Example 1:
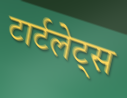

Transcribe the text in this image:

टार्टलेट्स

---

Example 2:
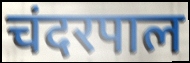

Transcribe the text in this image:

चंदरपाल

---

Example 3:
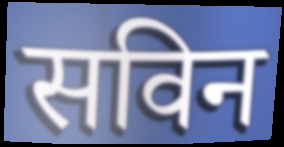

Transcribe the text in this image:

सविन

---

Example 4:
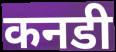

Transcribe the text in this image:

कनडी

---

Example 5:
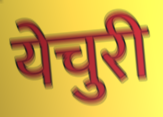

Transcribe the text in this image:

येचुरी